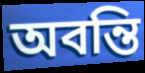
অবন্তি